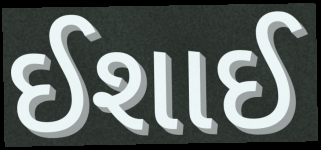
ઈશાઈ